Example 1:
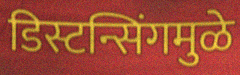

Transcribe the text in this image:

डिस्टन्सिंगमुळे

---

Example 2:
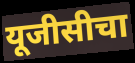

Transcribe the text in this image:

यूजीसीचा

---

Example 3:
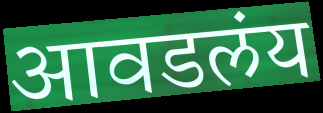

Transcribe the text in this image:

आवडलंय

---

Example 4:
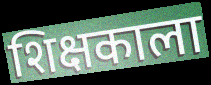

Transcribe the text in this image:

शिक्षकाला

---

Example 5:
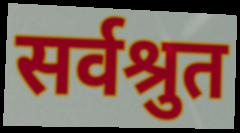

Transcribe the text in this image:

सर्वश्रुत